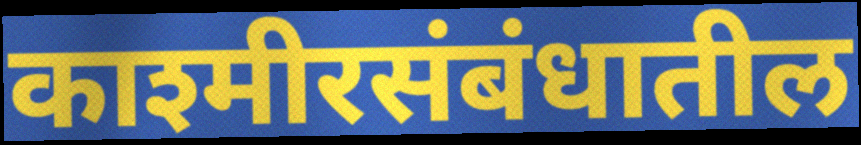
काश्मीरसंबंधातील